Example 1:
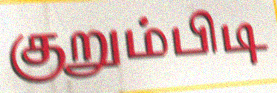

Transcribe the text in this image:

குறும்பிடி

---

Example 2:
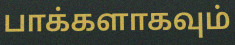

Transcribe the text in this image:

பாக்களாகவும்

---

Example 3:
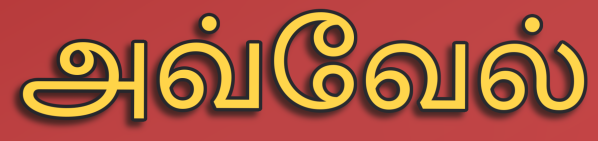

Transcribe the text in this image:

அவ்வேல்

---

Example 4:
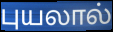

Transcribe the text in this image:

புயலால்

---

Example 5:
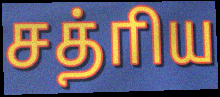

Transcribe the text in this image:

சத்ரிய